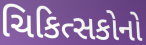
ચિકિત્સકોનો